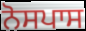
ਨੋਸਪਾਸ